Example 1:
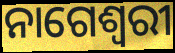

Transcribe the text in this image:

ନାଗେଶ୍ୱରୀ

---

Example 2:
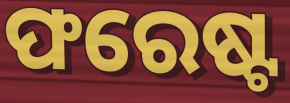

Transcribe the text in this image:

ଫରେଷ୍ଟ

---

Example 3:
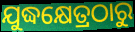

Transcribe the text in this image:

ଯୁଦ୍ଧକ୍ଷେତ୍ରଠାରୁ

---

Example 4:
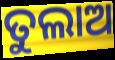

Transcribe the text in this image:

ତୁଲାଅ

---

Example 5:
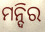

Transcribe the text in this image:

ମନ୍ଦିର